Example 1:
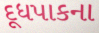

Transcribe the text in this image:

દૂધપાકના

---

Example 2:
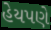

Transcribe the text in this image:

હેયપણે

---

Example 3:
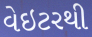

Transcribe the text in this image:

વેઇટરથી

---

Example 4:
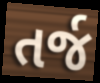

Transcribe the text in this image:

તર્જ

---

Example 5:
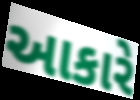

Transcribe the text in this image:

આકારે